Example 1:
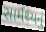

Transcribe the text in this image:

સાર્મથ્યનું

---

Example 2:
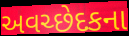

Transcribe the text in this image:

અવચ્છેદકના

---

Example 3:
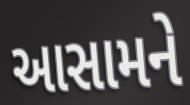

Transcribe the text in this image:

આસામને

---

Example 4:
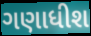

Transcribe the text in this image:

ગણાધીશ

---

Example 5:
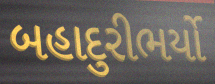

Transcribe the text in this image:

બહાદુરીભર્યો